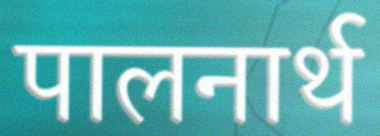
पालनार्थ